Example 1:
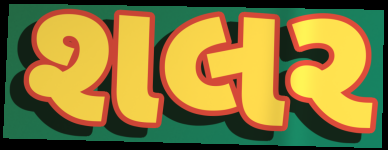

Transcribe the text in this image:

શલર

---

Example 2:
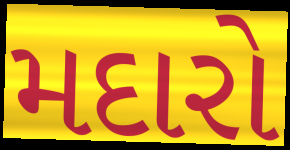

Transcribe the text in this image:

મદારો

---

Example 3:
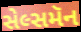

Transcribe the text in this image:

સેલ્સમૅન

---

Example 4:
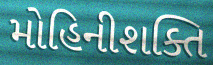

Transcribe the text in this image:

મોહિનીશક્તિ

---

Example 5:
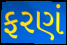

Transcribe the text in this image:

ફરણં